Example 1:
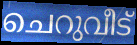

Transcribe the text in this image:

ചെറുവീട്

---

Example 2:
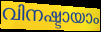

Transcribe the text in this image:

വിനഷ്ടായാം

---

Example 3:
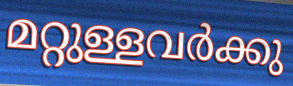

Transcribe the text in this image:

മറ്റുള്ളവർക്കു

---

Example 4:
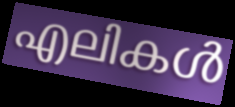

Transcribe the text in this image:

എലികൾ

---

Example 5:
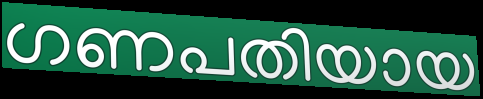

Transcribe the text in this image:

ഗണപതിയായ